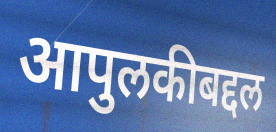
आपुलकीबद्दल